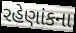
રહેણાંકના